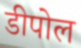
डीपोल